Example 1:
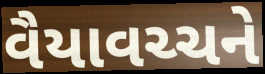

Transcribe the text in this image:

વૈયાવચ્ચને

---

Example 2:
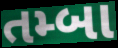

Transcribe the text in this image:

તમ્બા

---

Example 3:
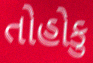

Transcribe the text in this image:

તોહોકુ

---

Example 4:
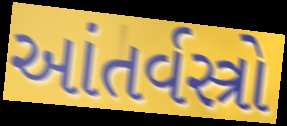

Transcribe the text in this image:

આંતર્વસ્ત્રો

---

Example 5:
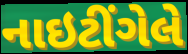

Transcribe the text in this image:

નાઇટીંગેલે